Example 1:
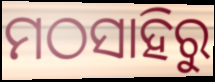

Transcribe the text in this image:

ମଠସାହିରୁ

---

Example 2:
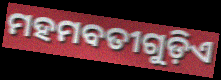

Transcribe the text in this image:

ମହମବତୀଗୁଡ଼ିଏ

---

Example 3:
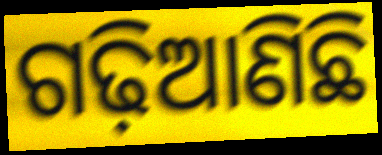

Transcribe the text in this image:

ଗଢ଼ିଆଣିଛି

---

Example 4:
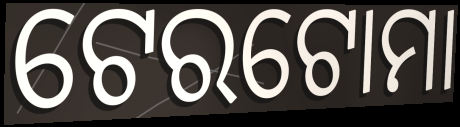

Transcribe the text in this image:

ଟେରଟୋମା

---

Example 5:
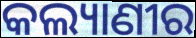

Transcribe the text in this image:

କଲ୍ୟାଣୀର